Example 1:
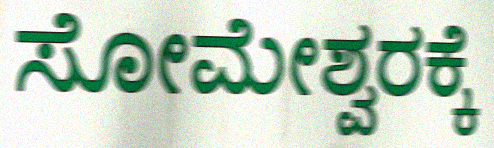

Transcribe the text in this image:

ಸೋಮೇಶ್ವರಕ್ಕೆ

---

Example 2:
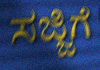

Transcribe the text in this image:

ಸಜ್ಜಿಗೆ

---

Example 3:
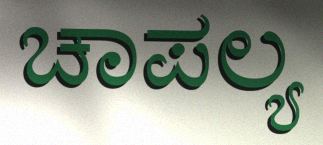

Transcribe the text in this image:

ಚಾಪಲ್ಯ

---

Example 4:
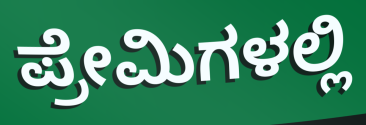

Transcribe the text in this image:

ಪ್ರೇಮಿಗಳಲ್ಲಿ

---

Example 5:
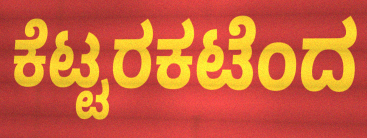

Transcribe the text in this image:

ಕೆಟ್ಟರಕಟೆಂದ